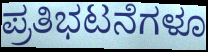
ಪ್ರತಿಭಟನೆಗಳೂ